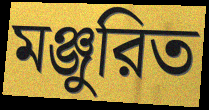
মঞ্জুরিত